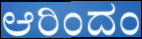
ಆರಿಂದಂ